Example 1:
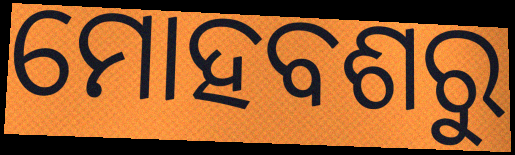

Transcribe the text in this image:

ମୋହବଶରୁ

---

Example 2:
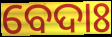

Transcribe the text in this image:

ବେଦାଃ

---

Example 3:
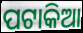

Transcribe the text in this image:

ପଟାକିଆ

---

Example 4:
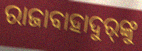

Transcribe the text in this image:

ରାଜାବାହାଦୁର୍‍ଙ୍କୁ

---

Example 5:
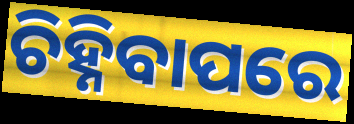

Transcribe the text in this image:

ଚିହ୍ନିବାପରେ